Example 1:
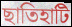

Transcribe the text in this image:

ছাতিহাটি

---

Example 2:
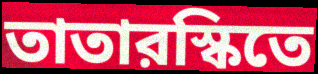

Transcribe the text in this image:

তাতারস্কিতে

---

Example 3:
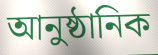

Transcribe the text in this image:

আনুষ্ঠানিক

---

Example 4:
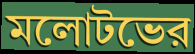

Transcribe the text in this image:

মলোটভের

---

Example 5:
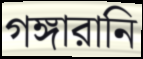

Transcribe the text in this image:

গঙ্গারানি